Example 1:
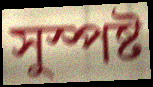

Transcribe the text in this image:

সুস্পষ্ট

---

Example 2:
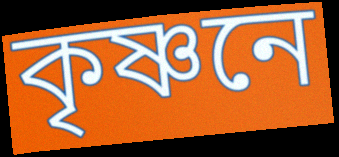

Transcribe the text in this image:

কৃষ্ণনে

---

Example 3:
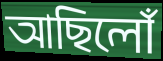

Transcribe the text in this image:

আছিলোঁ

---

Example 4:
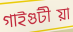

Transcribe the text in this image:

গাইগুটীয়া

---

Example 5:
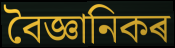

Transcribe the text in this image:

বৈজ্ঞানিকৰ